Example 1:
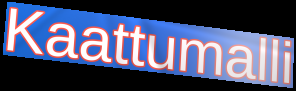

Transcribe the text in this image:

Kaattumalli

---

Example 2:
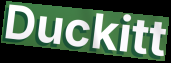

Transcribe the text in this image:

Duckitt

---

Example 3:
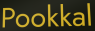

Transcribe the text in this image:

Pookkal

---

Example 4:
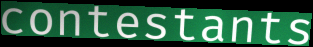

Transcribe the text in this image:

contestants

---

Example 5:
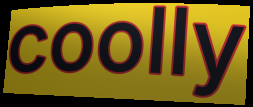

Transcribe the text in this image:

coolly